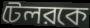
টেলরকে